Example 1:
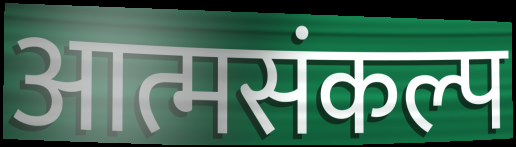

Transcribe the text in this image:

आत्मसंकल्प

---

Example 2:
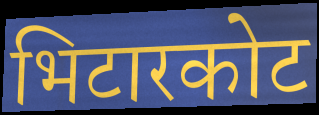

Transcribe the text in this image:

भिटारकोट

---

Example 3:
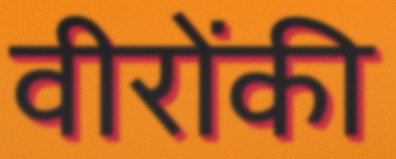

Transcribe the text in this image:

वीरोंकी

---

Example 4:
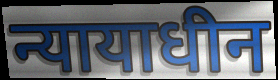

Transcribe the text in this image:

न्यायाधीन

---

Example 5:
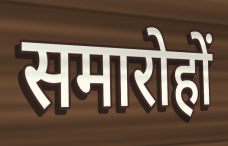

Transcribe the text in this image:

समारोहों